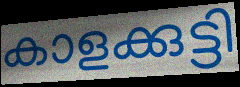
കാളക്കുട്ടി